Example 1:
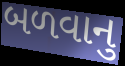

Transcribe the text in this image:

બળવાનુ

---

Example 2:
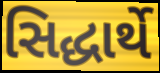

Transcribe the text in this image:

સિદ્ધાર્થે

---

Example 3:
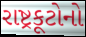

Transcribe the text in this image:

રાષ્ટ્રકૂટોનો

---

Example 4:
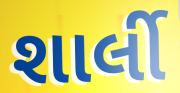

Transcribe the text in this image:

શાર્લી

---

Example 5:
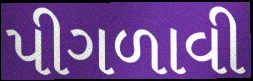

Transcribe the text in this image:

પીગળાવી